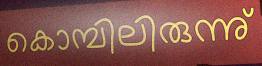
കൊമ്പിലിരുന്നു്